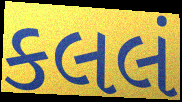
કલલં